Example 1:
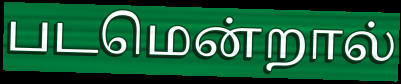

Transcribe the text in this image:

படமென்றால்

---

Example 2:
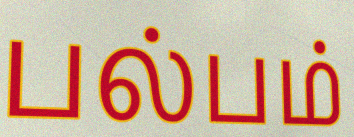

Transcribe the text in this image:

பல்பம்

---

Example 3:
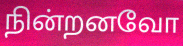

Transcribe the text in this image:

நின்றனவோ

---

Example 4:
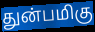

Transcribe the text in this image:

துன்பமிகு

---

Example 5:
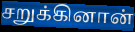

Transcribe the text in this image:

சறுக்கினான்